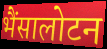
भैंसालोटन